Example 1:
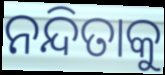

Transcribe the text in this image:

ନନ୍ଦିତାକୁ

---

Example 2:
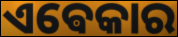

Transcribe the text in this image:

ଏଵେକାର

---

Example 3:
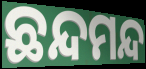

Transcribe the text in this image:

ଛନ୍ଦମନ୍ଦ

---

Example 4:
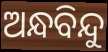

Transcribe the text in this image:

ଅନ୍ଧବିନ୍ଦୁ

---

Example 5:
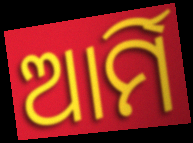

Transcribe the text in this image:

ଆର୍ମି